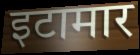
इटामार